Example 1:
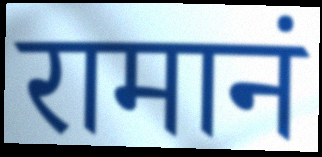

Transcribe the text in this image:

रामानं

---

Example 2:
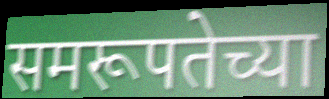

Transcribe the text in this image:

समरूपतेच्या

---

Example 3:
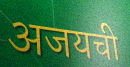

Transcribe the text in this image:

अजयची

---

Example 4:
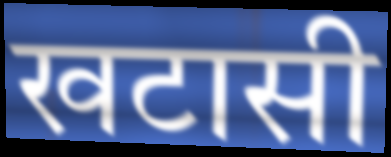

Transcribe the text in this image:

खटासी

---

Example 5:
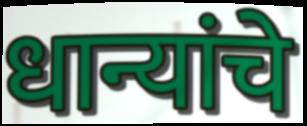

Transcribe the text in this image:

धान्यांचे